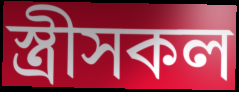
স্ত্ৰীসকল